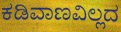
ಕಡಿವಾಣವಿಲ್ಲದ